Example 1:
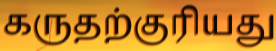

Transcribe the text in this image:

கருதற்குரியது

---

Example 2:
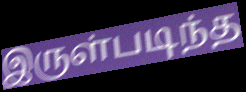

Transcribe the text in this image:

இருள்படிந்த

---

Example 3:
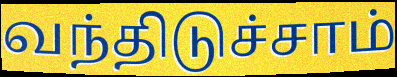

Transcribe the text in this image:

வந்திடுச்சாம்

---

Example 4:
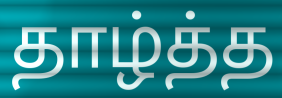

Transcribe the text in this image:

தாழ்த்த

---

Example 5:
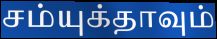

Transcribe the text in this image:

சம்யுக்தாவும்